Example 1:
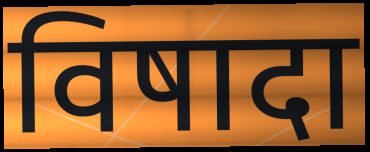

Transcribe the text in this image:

विषादा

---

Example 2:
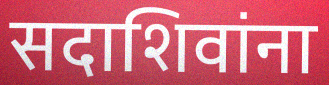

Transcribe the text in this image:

सदाशिवांना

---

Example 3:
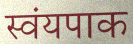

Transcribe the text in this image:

स्वंयपाक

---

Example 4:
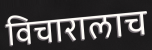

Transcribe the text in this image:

विचारालाच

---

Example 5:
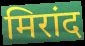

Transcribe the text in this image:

मिरांद